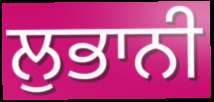
ਲੁਭਾਨੀ